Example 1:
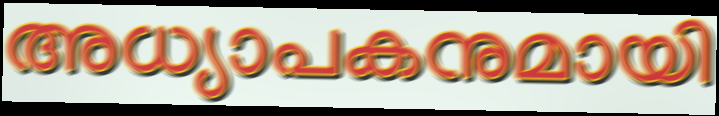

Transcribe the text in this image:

അധ്യാപകനുമായി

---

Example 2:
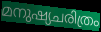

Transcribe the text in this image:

മനുഷ്യചരിത്രം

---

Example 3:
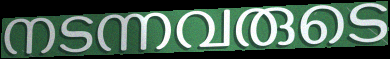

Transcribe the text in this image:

നടന്നവരുടെ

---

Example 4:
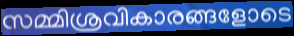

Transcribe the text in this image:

സമ്മിശ്രവികാരങ്ങളോടെ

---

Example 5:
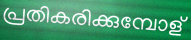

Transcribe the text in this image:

പ്രതികരിക്കുമ്പോള്